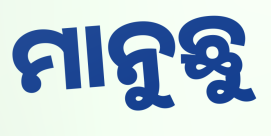
ମାନୁଛୁ